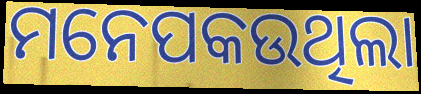
ମନେପକଉଥିଲା